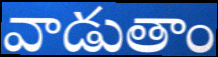
వాడుతాం